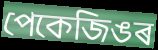
পেকেজিঙৰ